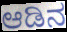
ಆಡಿನ